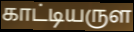
காட்டியருள